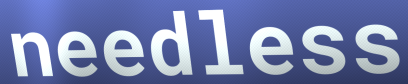
needless